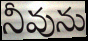
నీవును